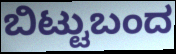
ಬಿಟ್ಟುಬಂದ